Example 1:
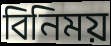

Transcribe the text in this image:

বিনিময়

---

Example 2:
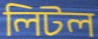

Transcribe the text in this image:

লিটল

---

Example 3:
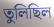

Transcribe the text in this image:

তুলিছিল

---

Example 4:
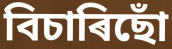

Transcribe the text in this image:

বিচাৰিছোঁ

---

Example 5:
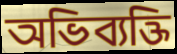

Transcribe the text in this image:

অভিব্যক্তি